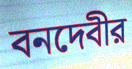
বনদেবীর